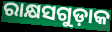
ରାକ୍ଷସଗୁଡ଼ାକ